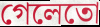
গেলেতো